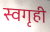
स्वगृही